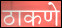
ठाकणे